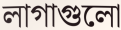
লাগাগুলো